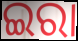
ଇରା